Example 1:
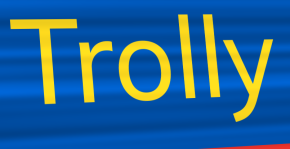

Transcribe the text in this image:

Trolly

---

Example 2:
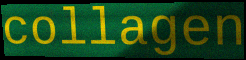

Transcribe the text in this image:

collagen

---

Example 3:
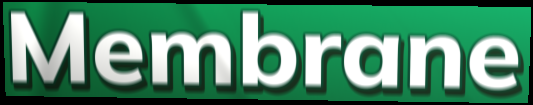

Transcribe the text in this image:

Membrane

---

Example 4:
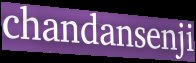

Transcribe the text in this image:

chandansenji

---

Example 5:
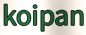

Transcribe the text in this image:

koipan